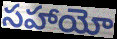
సహాయో